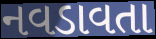
નવડાવતા